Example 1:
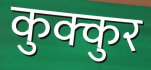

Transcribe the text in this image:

कुक्कुर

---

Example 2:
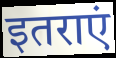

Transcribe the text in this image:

इतराएं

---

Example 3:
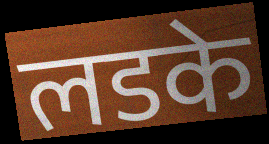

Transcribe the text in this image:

लडके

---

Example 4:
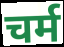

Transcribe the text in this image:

चर्म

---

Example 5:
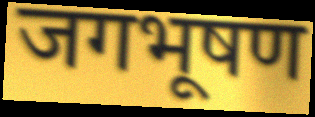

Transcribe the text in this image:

जगभूषण